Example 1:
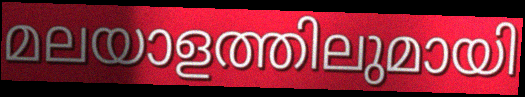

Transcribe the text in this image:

മലയാളത്തിലുമായി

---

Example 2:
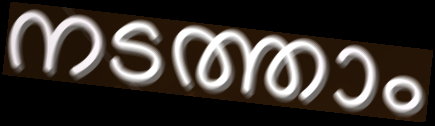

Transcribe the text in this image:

നടത്താം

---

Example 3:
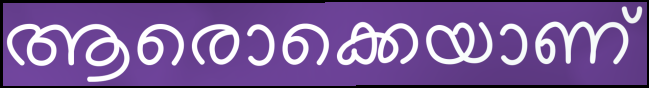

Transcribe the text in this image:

ആരൊക്കെയാണ്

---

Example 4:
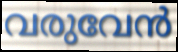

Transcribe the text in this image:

വരുവേൻ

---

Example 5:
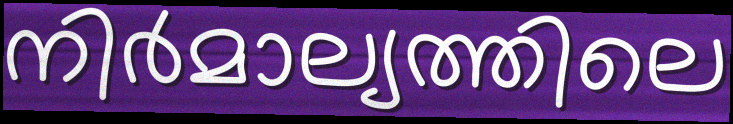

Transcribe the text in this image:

നിർമാല്യത്തിലെ